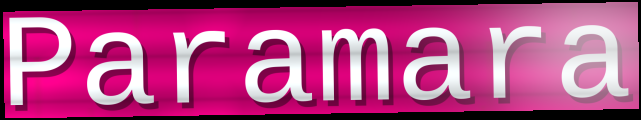
Paramara